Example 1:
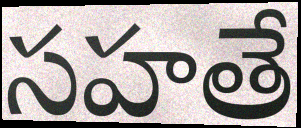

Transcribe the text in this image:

సహతే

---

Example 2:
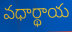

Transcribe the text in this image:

వధార్థాయ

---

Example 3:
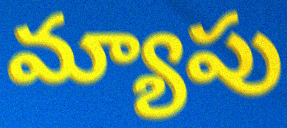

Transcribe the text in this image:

మ్యాపు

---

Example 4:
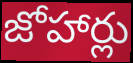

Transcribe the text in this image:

జోహార్లు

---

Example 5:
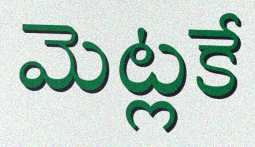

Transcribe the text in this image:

మెట్లకే